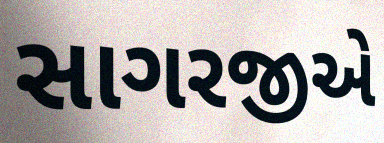
સાગરજીએ